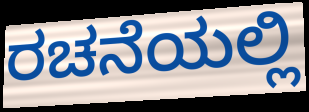
ರಚನೆಯಲ್ಲಿ